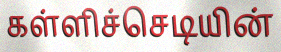
கள்ளிச்செடியின்